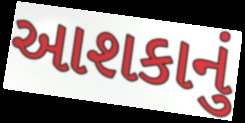
આશકાનું